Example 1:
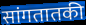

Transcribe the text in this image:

सांगतातकी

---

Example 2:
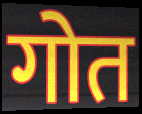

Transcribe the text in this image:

गोत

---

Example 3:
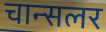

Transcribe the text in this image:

चान्सलर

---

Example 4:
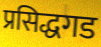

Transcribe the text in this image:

प्रसिद्धगड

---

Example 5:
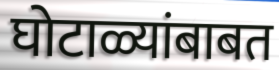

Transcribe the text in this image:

घोटाळ्यांबाबत